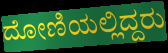
ದೋಣಿಯಲ್ಲಿದ್ದರು